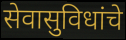
सेवासुविधांचे